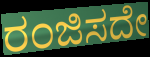
ರಂಜಿಸದೇ